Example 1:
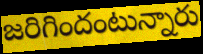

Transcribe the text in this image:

జరిగిందంటున్నారు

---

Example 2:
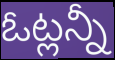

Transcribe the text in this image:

ఓట్లన్నీ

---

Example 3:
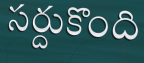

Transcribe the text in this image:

సర్దుకొంది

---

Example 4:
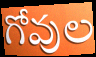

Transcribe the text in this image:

గోవుల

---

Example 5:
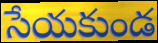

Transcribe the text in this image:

సేయకుండ